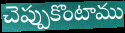
చెప్పుకొంటాము